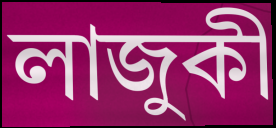
লাজুকী